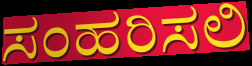
ಸಂಹರಿಸಲಿ